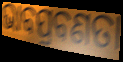
ଭାବପ୍ରବଣତା